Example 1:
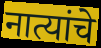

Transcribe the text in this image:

नात्यांचे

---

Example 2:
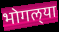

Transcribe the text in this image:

भोगल्या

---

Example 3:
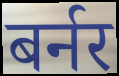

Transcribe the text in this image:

बर्नर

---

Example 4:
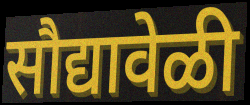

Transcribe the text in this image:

सौद्यावेळी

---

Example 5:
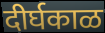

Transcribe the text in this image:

दीर्घकाळ